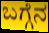
ಬಗ್ಗೆನ